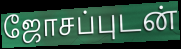
ஜோசப்புடன்